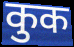
कुक